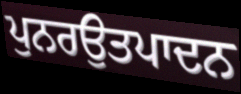
ਪੁਨਰਉਤਪਾਦਨ